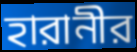
হারানীর